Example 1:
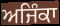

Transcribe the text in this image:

ਅਜਿੰਕਾ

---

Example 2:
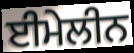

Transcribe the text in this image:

ਈਮੇਲੀਨ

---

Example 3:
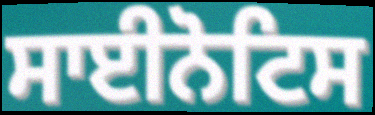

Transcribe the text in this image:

ਸਾਈਨੋਟਿਸ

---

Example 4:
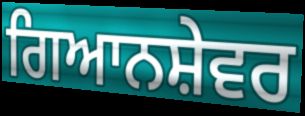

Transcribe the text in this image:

ਗਿਆਨਸ਼ੇਵਰ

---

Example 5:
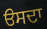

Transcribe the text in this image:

ੳਸਦਾ